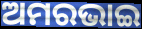
ଅମରଭାଇ